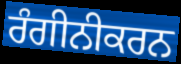
ਰੰਗੀਨੀਕਰਨ